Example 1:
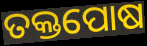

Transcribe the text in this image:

ତକ୍ତପୋଷ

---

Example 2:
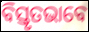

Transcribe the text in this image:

ବିସ୍ତୃତଭାବେ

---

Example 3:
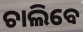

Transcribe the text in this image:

ଚାଲିବେ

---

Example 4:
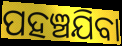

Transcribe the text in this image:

ପହଞ୍ଚଯିବା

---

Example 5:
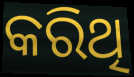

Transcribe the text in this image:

କରିଥି